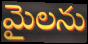
మైలను